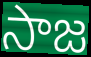
సాజ